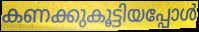
കണക്കുകൂട്ടിയപ്പോൾ